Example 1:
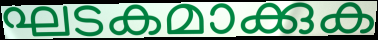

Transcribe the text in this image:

ഘടകമാക്കുക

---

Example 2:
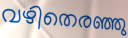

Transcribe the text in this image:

വഴിതെരഞ്ഞു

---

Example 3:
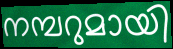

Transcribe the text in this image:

നമ്പറുമായി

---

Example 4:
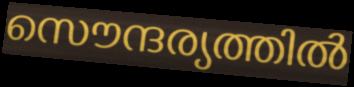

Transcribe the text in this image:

സൌന്ദര്യത്തിൽ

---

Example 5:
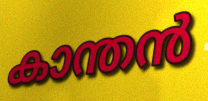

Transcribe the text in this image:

കാന്തൻ